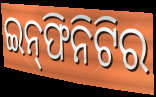
ଇନ୍‌ଫିନିଟିର